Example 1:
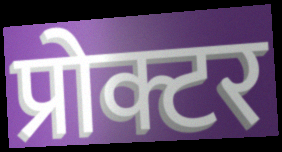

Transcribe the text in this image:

प्रोक्टर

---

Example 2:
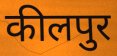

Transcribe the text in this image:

कीलपुर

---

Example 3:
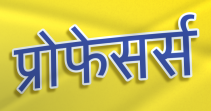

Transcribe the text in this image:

प्रोफेसर्स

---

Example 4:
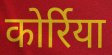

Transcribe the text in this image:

कोर्रिया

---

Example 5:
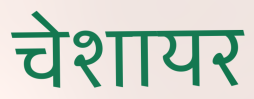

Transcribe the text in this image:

चेशायर